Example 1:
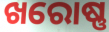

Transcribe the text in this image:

ଖରୋଷ୍ଣ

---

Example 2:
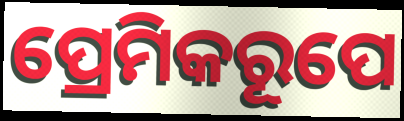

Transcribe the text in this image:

ପ୍ରେମିକରୂପେ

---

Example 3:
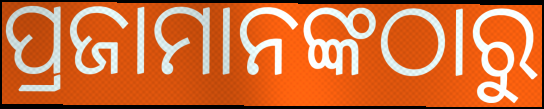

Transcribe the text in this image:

ପ୍ରଜାମାନଙ୍କଠାରୁ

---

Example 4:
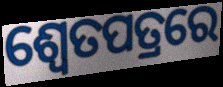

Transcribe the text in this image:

ଶ୍ଵେତପତ୍ରରେ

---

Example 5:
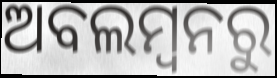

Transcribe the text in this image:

ଅବଲମ୍ବନରୁ